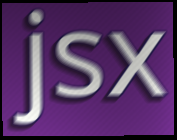
jsx